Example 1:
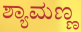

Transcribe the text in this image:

ಶ್ಯಾಮಣ್ಣ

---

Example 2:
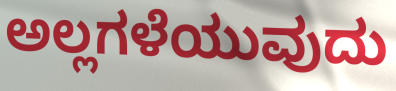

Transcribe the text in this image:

ಅಲ್ಲಗಳೆಯುವುದು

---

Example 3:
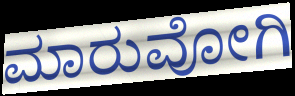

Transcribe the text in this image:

ಮಾರುವೋಗಿ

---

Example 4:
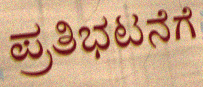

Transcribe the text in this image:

ಪ್ರತಿಭಟನೆಗೆ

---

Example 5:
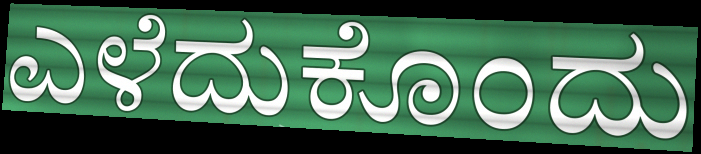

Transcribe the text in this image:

ಎಳೆದುಕೊಂದು